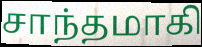
சாந்தமாகி